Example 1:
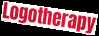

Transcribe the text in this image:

Logotherapy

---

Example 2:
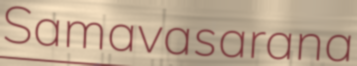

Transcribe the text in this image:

Samavasarana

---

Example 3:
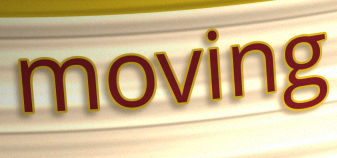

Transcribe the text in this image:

moving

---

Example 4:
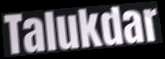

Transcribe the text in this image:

Talukdar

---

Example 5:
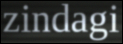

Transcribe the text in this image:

zindagi